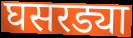
घसरड्या